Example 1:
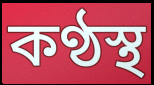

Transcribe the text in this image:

কণ্ঠস্থ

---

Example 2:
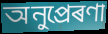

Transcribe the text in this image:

অনুপ্ৰেৰণা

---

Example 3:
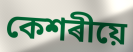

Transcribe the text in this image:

কেশৰীয়ে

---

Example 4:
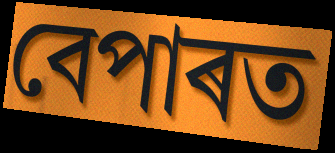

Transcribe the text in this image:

বেপাৰত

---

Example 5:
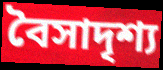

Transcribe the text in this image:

বৈসাদৃশ্য